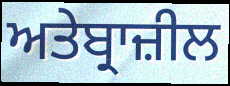
ਅਤੇਬ੍ਰਾਜ਼ੀਲ